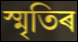
স্মৃতিৰ